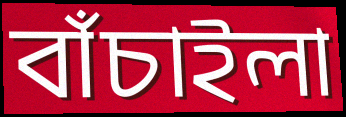
বাঁচাইলা